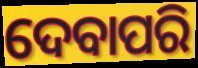
ଦେବାପରି